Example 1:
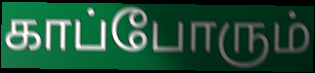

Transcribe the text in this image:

காப்போரும்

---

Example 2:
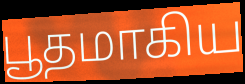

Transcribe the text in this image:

பூதமாகிய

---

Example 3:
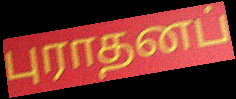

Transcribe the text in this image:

புராதனப்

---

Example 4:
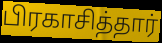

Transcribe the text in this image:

பிரகாசித்தார்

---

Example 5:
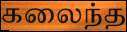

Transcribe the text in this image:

கலைந்த